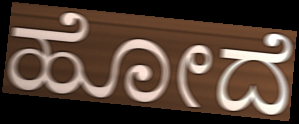
ಹೋದೆ